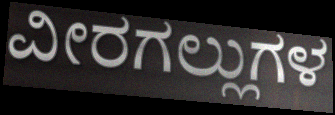
ವೀರಗಲ್ಲುಗಳ